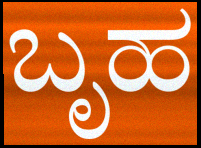
ಬೃಹ